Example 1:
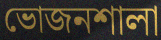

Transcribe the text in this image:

ভোজনশালা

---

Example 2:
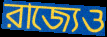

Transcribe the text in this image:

রাজ্যেও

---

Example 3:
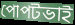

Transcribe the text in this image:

পোপটভাই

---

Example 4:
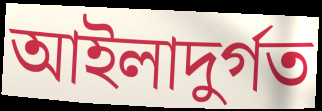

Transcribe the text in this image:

আইলাদুর্গত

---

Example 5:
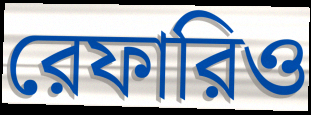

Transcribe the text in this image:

রেফারিও